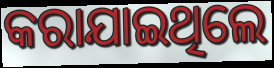
କରାଯାଇଥିଲେ